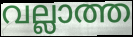
വല്ലാത്ത